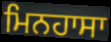
ਮਿਨਹਾਸਾ